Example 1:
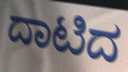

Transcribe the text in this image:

ದಾಟಿದ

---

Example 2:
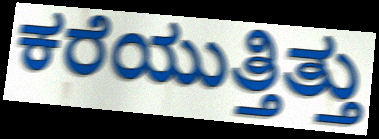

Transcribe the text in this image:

ಕರೆಯುತ್ತಿತ್ತು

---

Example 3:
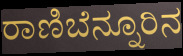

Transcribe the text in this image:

ರಾಣಿಬೆನ್ನೂರಿನ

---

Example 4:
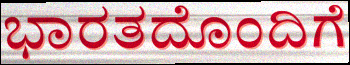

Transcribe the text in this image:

ಭಾರತದೊಂದಿಗೆ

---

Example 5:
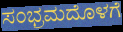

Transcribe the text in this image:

ಸಂಭ್ರಮದೊಳಗೆ